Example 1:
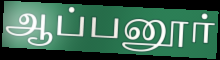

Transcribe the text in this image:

ஆப்பனூர்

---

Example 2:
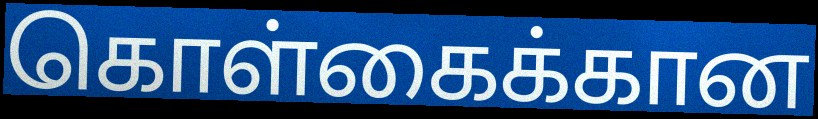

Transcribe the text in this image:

கொள்கைக்கான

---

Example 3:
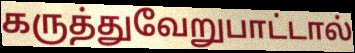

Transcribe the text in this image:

கருத்துவேறுபாட்டால்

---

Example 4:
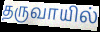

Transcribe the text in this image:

தருவாயில்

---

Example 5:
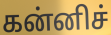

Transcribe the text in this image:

கன்னிச்